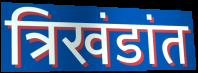
त्रिखंडांत